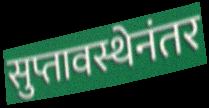
सुप्तावस्थेनंतर